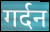
गर्दन